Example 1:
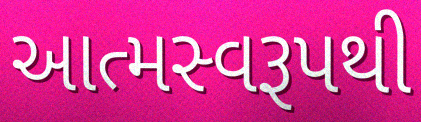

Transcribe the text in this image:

આત્મસ્વરૂપથી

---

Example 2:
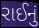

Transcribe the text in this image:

રાઈનું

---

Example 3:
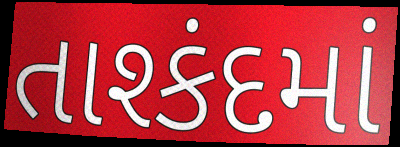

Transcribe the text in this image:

તાશ્કંદમાં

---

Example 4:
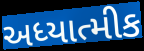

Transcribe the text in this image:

અધ્યાત્મીક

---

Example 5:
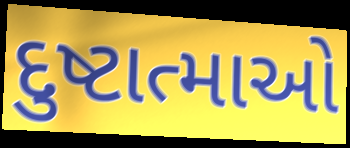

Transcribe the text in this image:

દુષ્ટાત્માઓ